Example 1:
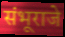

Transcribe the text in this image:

संभूराजे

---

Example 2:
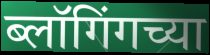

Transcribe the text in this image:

ब्लॉगिंगच्या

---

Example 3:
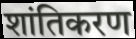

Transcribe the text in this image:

शांतिकरण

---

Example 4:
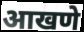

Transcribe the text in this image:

आखणे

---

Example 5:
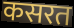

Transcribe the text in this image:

कसरत